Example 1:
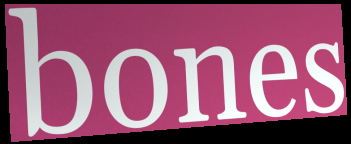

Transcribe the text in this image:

bones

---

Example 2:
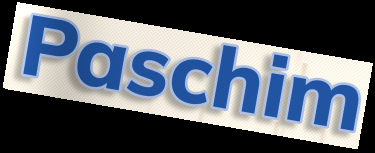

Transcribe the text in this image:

Paschim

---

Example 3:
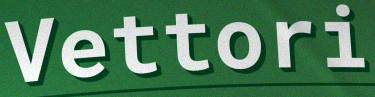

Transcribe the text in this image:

Vettori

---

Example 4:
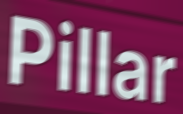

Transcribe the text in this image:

Pillar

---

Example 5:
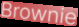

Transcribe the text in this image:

Brownie